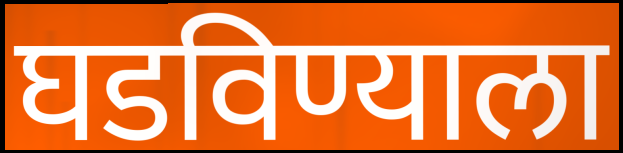
घडविण्याला